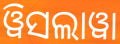
ୱିସଲାୱା